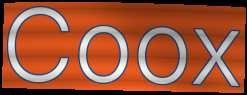
Coox